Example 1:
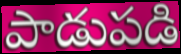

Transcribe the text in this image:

పాడుపడి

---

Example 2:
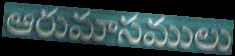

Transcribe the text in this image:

ఆరుమాసములు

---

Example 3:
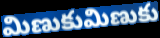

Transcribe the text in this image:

మిణుకుమిణుకు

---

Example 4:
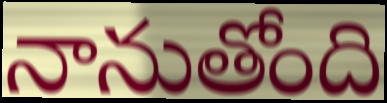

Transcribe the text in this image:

నానుతోంది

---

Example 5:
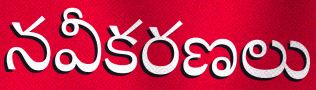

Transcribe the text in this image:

నవీకరణలు